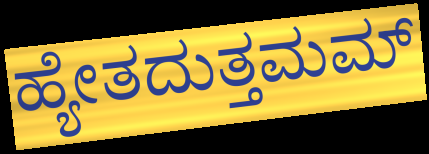
ಹ್ಯೇತದುತ್ತಮಮ್